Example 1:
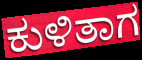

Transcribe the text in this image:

ಕುಳಿತಾಗ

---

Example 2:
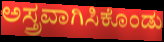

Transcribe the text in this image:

ಅಸ್ತ್ರವಾಗಿಸಿಕೊಂಡು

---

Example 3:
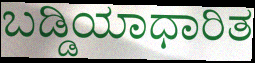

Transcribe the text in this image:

ಬಡ್ಡಿಯಾಧಾರಿತ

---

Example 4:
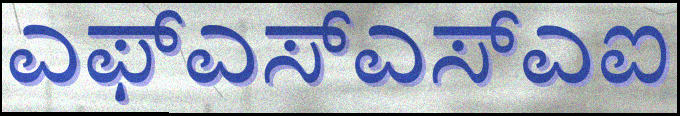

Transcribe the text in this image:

ಎಫ್ಎಸ್ಎಸ್ಎಐ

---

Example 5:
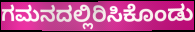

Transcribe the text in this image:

ಗಮನದಲ್ಲಿರಿಸಿಕೊಂಡು